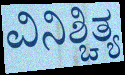
ವಿನಿಶ್ಚಿತ್ಯ